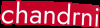
chandrni